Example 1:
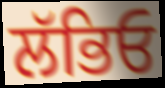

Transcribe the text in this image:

ਲੱਭਿਓ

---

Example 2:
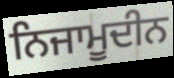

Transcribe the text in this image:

ਨਿਜਾਮੂਦੀਨ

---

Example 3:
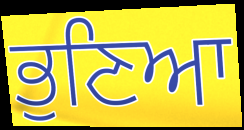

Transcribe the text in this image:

ਭੁਣਿਆ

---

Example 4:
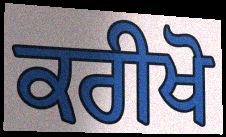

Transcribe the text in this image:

ਕਰੀਖੋ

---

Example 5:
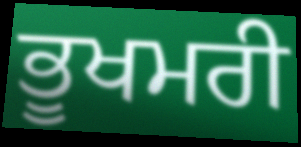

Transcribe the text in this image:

ਭੂਖਮਰੀ